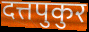
दत्तपुकुर